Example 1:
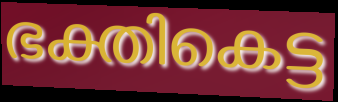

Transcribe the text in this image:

ഭക്തികെട്ട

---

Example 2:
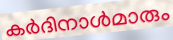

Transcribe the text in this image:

കർദിനാൾമാരും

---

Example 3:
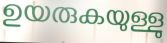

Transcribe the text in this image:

ഉയരുകയുള്ളു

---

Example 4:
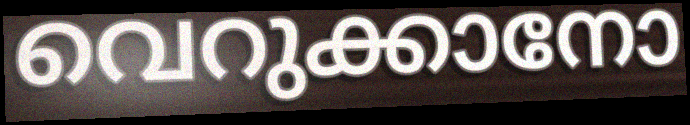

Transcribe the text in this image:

വെറുക്കാനോ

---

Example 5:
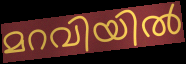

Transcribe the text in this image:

മറവിയിൽ